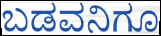
ಬಡವನಿಗೂ